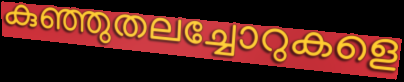
കുഞ്ഞുതലച്ചോറുകളെ